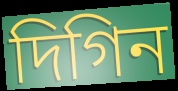
দিগিন